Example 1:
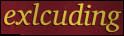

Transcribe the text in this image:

exlcuding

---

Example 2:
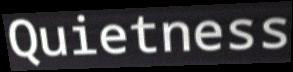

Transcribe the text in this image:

Quietness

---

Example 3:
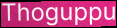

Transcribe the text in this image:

Thoguppu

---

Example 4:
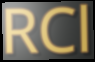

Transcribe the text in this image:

RCl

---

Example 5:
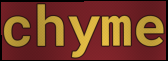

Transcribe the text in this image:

chyme